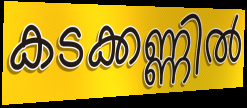
കടക്കണ്ണിൽ